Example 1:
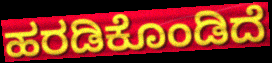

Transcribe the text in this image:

ಹರಡಿಕೊಂಡಿದೆ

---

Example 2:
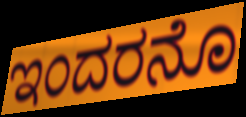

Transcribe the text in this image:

ಇಂದರನೊ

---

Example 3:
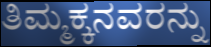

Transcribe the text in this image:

ತಿಮ್ಮಕ್ಕನವರನ್ನು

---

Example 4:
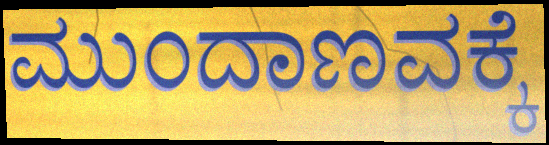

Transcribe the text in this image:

ಮುಂದಾಣವಕ್ಕೆ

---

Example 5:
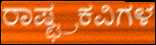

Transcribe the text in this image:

ರಾಷ್ಟ್ರಕವಿಗಳ